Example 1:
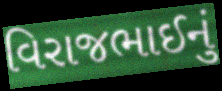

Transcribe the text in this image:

વિરાજભાઈનું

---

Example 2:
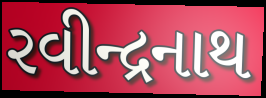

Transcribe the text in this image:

રવીન્દ્રનાથ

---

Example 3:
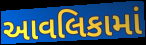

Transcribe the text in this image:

આવલિકામાં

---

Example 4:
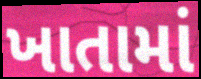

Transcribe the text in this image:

ખાતામાં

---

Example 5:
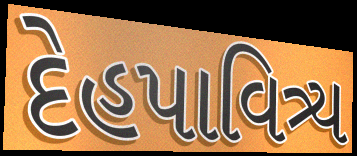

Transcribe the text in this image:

દેહપાવિત્ર્ય